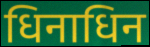
धिनाधिन